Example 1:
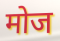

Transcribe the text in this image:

मोज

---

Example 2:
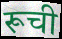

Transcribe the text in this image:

रूची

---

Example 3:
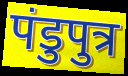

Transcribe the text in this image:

पंडुपुत्र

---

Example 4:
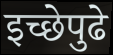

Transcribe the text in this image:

इच्छेपुढे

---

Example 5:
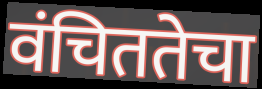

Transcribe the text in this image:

वंचिततेचा